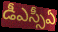
డీఎస్సీఏ